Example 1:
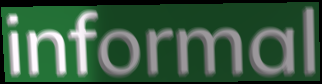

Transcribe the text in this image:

informal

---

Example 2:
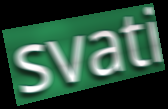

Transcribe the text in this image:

svati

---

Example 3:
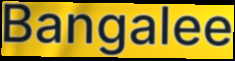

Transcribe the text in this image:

Bangalee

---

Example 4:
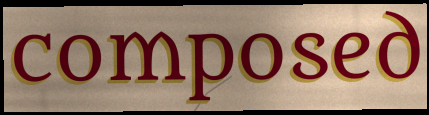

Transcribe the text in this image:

composed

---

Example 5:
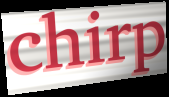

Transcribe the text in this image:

chirp